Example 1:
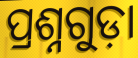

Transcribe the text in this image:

ପ୍ରଶ୍ନଗୁଡ଼ା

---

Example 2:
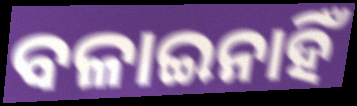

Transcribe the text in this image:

ବଳାଇନାହିଁ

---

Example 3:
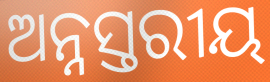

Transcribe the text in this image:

ଅନ୍ନସ୍ତରୀୟ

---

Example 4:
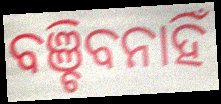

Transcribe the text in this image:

ବଞ୍ଚିବନାହିଁ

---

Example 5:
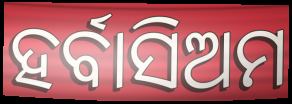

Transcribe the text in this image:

ହର୍ବାସିଅମ